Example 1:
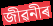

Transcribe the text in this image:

জীৱনীৰ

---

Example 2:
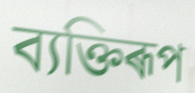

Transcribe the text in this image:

ব্যক্তিৰূপ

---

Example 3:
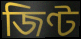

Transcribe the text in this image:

জিণ্ট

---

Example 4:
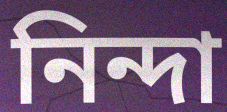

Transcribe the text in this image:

নিন্দা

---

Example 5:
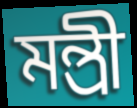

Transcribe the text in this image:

মন্ত্ৰী